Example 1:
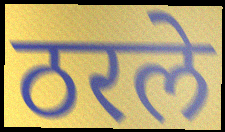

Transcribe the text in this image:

ठरले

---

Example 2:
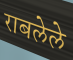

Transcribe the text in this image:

राबलेले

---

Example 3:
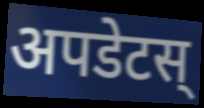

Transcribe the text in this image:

अपडेटस्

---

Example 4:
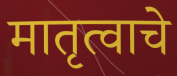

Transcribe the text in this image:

मातृत्वाचे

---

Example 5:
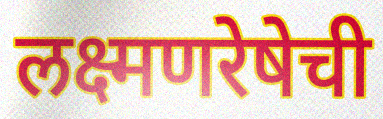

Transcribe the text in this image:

लक्ष्मणरेषेची